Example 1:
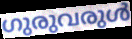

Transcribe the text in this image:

ഗുരുവരുൾ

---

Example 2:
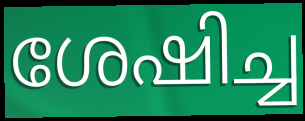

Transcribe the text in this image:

ശേഷിച്ച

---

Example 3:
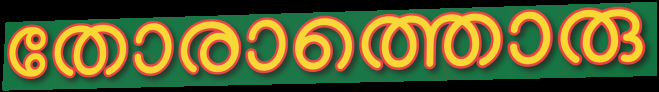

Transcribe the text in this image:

തോരാത്തൊരു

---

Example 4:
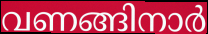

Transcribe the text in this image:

വണങ്ങിനാർ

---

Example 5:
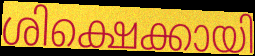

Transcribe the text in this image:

ശിക്ഷെക്കായി